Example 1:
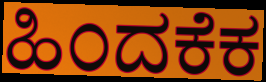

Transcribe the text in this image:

ಹಿಂದಕೆಕ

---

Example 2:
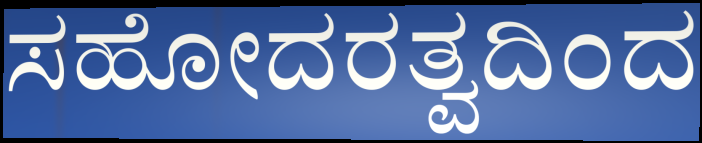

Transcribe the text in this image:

ಸಹೋದರತ್ವದಿಂದ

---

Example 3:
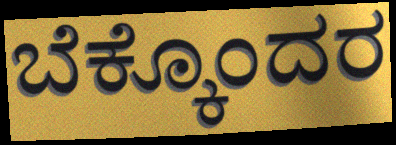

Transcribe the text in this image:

ಬೆಕ್ಕೊಂದರ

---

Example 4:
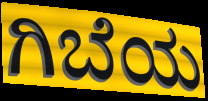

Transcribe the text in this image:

ಗಿಬೆಯ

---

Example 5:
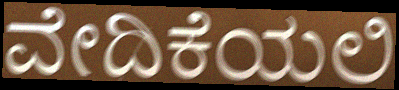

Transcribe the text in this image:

ವೇದಿಕೆಯಲಿ